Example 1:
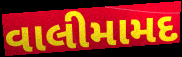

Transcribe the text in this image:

વાલીમામદ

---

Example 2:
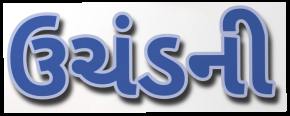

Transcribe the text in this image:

ઉચંડની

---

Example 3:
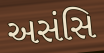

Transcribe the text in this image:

અસંસિ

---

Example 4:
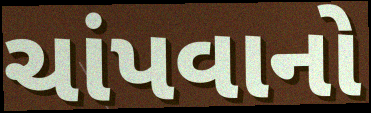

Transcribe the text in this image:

ચાંપવાનો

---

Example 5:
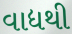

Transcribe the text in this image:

વાદ્યથી